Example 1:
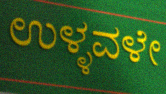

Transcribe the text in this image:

ಉಳ್ಳವಳೇ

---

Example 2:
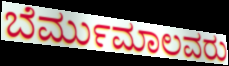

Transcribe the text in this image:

ಬೆರ್ಮುಮಾಲವರು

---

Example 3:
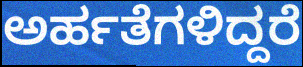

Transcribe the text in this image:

ಅರ್ಹತೆಗಳಿದ್ದರೆ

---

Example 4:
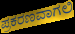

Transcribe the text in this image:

ಪ್ರಕರಣವಾಗಲಿ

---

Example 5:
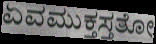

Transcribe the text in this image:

ಏವಮುಕ್ತಸ್ತತೋ